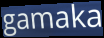
gamaka